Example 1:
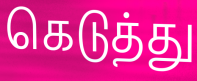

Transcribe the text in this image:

கெடுத்து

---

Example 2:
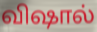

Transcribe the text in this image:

விஷால்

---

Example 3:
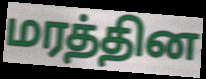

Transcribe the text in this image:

மரத்தின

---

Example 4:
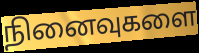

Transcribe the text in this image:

நினைவுகளை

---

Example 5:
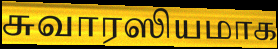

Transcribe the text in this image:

சுவாரஸியமாக